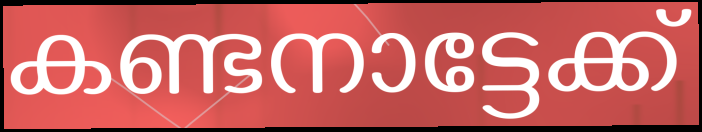
കണ്ടനാട്ടേക്ക്